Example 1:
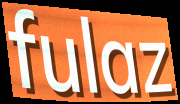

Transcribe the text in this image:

fulaz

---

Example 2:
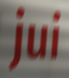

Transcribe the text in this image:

jui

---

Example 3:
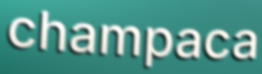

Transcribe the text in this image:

champaca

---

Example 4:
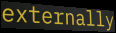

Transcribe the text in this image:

externally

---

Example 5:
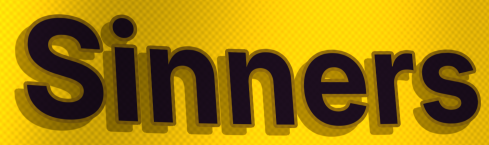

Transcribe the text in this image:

Sinners